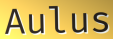
Aulus